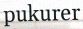
pukurer